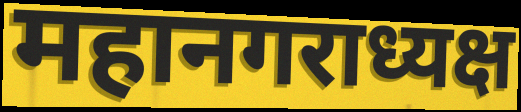
महानगराध्यक्ष